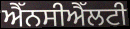
ਐੱਨਸੀਐੱਲਟੀ